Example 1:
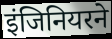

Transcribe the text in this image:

इंजिनियरने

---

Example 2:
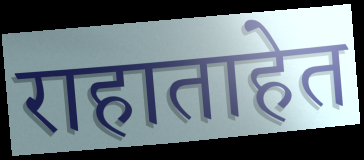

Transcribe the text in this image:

राहाताहेत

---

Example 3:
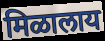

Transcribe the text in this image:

मिळालाय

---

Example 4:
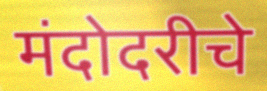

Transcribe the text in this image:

मंदोदरीचे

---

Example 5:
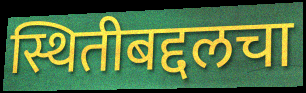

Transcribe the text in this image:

स्थितीबद्दलचा